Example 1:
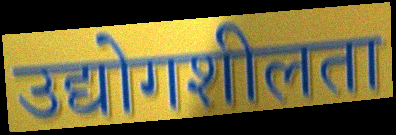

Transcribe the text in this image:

उद्योगशीलता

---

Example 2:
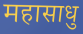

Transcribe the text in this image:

महासाधु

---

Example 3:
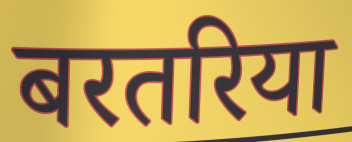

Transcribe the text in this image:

बरतरिया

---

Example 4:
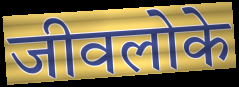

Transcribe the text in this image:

जीवलोके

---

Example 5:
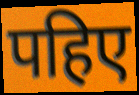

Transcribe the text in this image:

पहिए